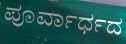
ಪೂರ್ವಾರ್ಧದ